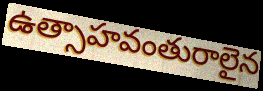
ఉత్సాహవంతురాలైన